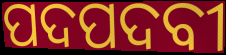
ପଦପଦବୀ